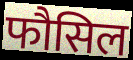
फौसिल